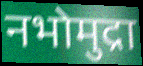
नभोमुद्रा